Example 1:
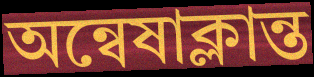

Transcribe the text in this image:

অন্বেষাক্লান্ত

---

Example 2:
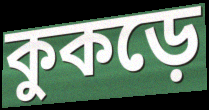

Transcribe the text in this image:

কুকড়ে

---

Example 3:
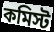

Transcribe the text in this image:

কমিস্ট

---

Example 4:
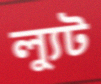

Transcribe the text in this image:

ল্যুট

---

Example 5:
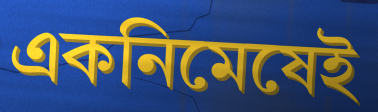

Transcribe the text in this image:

একনিমেষেই